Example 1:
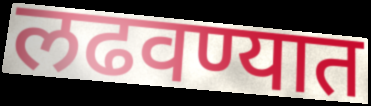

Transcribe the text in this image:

लढवण्यात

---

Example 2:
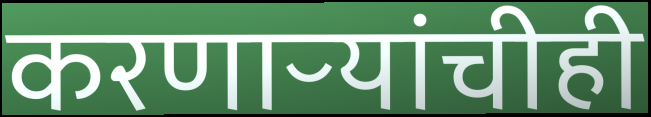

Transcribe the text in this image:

करणाऱ्यांचीही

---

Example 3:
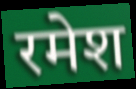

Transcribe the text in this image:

रमेश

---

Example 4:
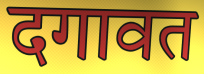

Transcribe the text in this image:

दगावत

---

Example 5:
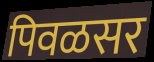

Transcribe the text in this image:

पिवळसर